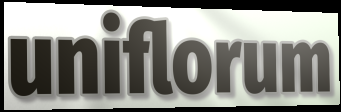
uniflorum